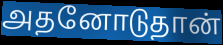
அதனோடுதான்